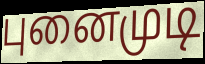
புனைமுடி